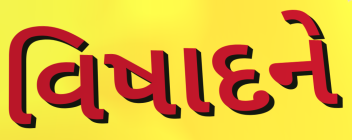
વિષાદને